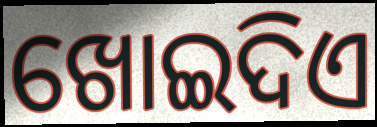
ଖୋଇଦିଏ